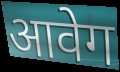
आवेग